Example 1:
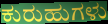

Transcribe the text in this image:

ಕುರುಹುಗಳು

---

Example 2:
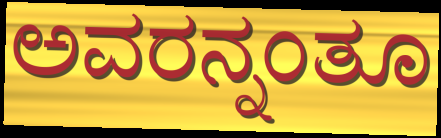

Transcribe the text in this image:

ಅವರನ್ನಂತೂ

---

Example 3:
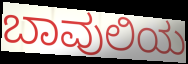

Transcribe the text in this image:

ಬಾವುಲಿಯ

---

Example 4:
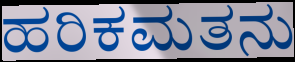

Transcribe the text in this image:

ಹರಿಕಮತನು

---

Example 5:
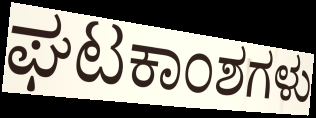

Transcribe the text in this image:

ಘಟಕಾಂಶಗಳು